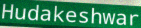
Hudakeshwar